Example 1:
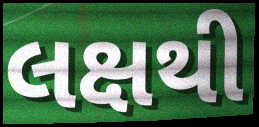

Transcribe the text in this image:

લક્ષથી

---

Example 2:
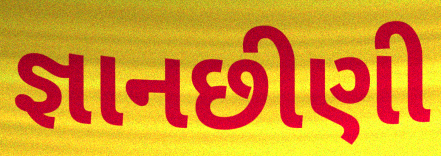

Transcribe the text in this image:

જ્ઞાનછીણી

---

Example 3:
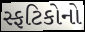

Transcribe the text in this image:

સ્ફટિકોનો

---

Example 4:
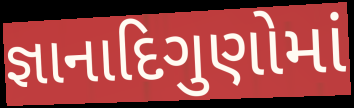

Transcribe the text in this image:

જ્ઞાનાદિગુણોમાં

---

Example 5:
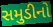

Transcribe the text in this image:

સમુડીનો